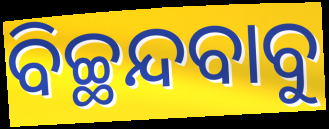
ବିଚ୍ଛନ୍ଦବାବୁ